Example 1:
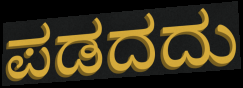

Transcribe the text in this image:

ಪಡದದು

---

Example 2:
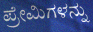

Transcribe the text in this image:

ಪ್ರೇಮಿಗಳನ್ನು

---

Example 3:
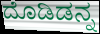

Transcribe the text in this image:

ದೊಡಿಡನ್ನ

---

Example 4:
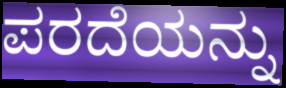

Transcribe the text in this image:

ಪರದೆಯನ್ನು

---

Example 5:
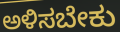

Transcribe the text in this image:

ಅಳಿಸಬೇಕು